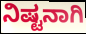
ನಿಷ್ಟನಾಗಿ